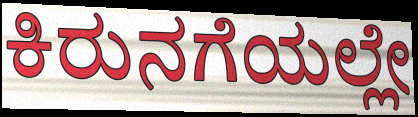
ಕಿರುನಗೆಯಲ್ಲೇ